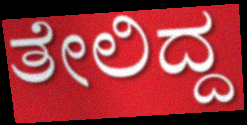
ತೇಲಿದ್ದ